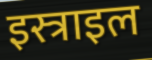
इस्त्राइल